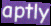
aptly